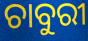
ଚାବୁରୀ